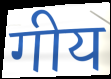
गीय